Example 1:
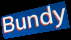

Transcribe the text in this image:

Bundy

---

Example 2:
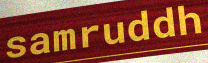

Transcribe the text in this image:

samruddh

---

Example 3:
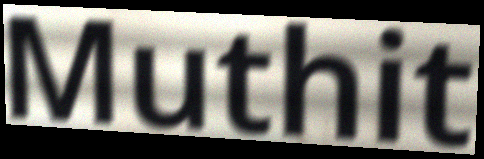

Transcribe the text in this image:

Muthit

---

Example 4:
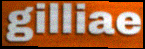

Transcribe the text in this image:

gilliae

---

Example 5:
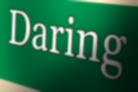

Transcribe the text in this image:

Daring